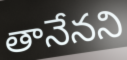
తానేనని